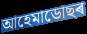
আহেমাডোছৰ